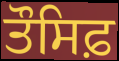
ਤੌਸਿਫ਼